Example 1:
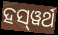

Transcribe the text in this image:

ହସ୍‌ୱର୍ଥ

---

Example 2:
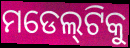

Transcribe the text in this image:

ମଡେଲ୍‌ଟିକୁ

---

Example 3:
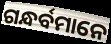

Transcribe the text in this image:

ଗନ୍ଧର୍ବମାନେ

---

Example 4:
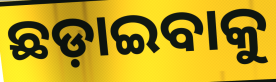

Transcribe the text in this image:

ଛଡ଼ାଇବାକୁ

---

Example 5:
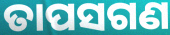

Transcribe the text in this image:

ତାପସଗଣ